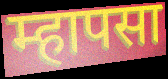
म्हापसा